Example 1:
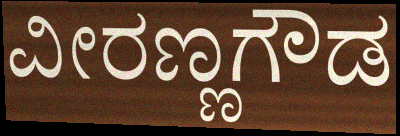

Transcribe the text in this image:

ವೀರಣ್ಣಗೌಡ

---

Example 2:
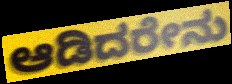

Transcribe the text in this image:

ಆಡಿದರೇನು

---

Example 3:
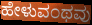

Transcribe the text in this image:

ಹೇಳುವಂಥವು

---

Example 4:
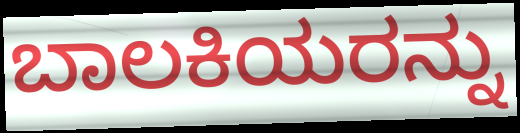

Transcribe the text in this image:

ಬಾಲಕಿಯರನ್ನು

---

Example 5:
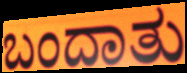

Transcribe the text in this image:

ಬಂದಾತು